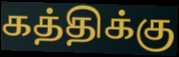
கத்திக்கு